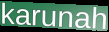
karunah